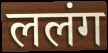
ललंग